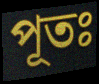
পূতঃ